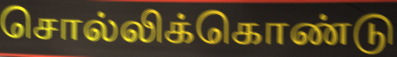
சொல்லிக்கொண்டு